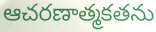
ఆచరణాత్మకతను